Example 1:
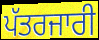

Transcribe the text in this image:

ਪੱਤਰਜਾਰੀ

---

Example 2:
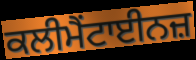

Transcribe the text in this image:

ਕਲੀਮੈਂਟਾਈਨਜ਼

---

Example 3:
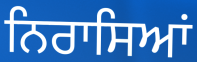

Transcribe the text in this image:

ਨਿਰਾਸਿਆਂ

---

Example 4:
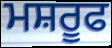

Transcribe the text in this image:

ਮਸ਼ਰੂਫ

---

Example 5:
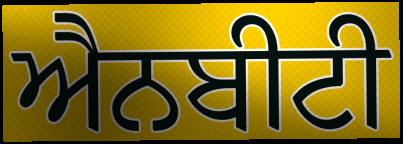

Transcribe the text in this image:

ਐਨਬੀਟੀ